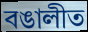
বঙালীত